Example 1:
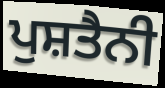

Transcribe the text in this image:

ਪੁਸ਼ਤੈਨੀ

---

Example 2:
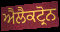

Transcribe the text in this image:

ਐਲੈਕਟ੍ਰੋਨ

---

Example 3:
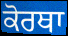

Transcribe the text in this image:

ਕੋਰਥਾ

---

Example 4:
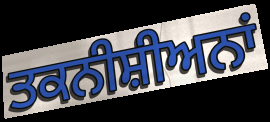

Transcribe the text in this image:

ਤਕਨੀਸ਼ੀਅਨਾਂ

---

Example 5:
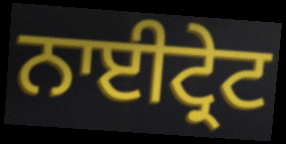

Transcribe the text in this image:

ਨਾਈਟ੍ਰੇਟ